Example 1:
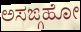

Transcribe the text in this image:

ಅಸಙ್ಗಹೋ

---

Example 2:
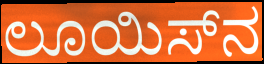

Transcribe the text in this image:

ಲೂಯಿಸ್‌ನ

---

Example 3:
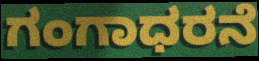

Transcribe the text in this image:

ಗಂಗಾಧರನೆ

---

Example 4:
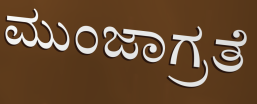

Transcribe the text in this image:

ಮುಂಜಾಗ್ರತೆ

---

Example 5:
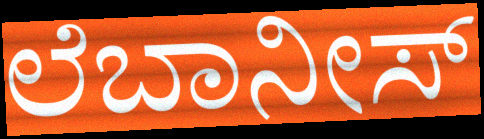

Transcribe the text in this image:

ಲೆಬಾನೀಸ್